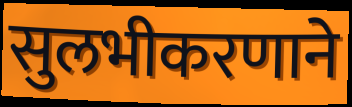
सुलभीकरणाने